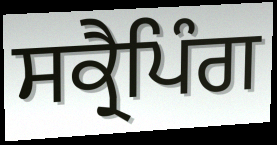
ਸਕ੍ਰੈਪਿੰਗ